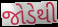
જોડેથી